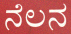
ನೆಲನ